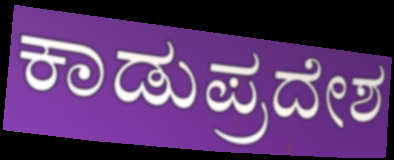
ಕಾಡುಪ್ರದೇಶ